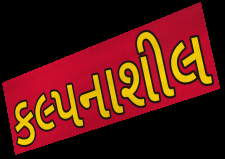
કલ્પનાશીલ